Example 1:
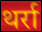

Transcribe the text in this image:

थर्रा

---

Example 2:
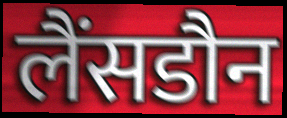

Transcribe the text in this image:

लैंसडौन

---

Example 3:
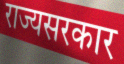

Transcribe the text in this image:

राज्यसरकार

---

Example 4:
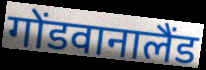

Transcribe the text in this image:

गोंडवानालैंड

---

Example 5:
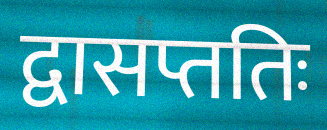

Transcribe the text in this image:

द्वासप्ततिः